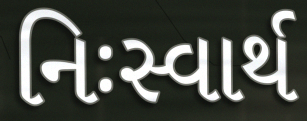
નિઃસ્વાર્થ